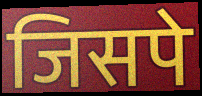
जिसपे